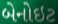
બેનોઇટ